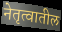
नेतृत्वातील